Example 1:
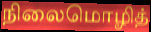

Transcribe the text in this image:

நிலைமொழித்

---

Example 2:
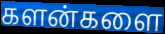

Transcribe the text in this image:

களன்களை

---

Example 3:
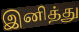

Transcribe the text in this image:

இனித்து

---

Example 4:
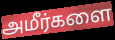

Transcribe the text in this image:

அமீர்களை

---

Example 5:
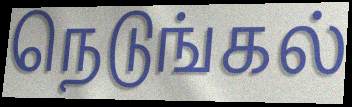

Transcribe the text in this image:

நெடுங்கல்